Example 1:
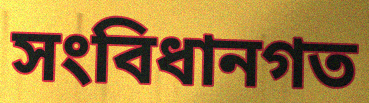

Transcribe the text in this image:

সংবিধানগত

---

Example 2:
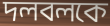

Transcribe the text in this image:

দলবলকে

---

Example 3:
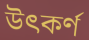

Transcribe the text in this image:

উৎকর্ণ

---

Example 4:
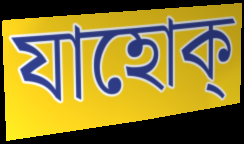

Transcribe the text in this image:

যাহোক্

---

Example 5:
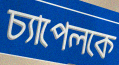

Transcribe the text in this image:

চ্যাপেলকে